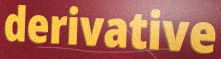
derivative